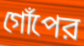
গোঁপের